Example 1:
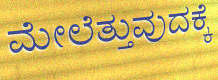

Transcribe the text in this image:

ಮೇಲೆತ್ತುವುದಕ್ಕೆ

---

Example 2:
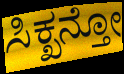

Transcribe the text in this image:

ಸಿಕ್ಖನ್ತೋ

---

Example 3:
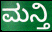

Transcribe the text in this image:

ಮನ್ತಿ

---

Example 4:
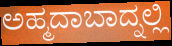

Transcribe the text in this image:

ಅಹ್ಮದಾಬಾದ್ನಲ್ಲಿ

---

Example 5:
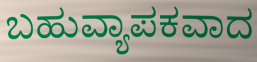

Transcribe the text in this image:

ಬಹುವ್ಯಾಪಕವಾದ